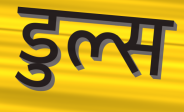
डुल्स